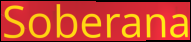
Soberana